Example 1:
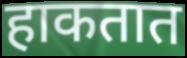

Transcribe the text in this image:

हाकतात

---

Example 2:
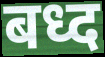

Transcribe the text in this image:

बध्द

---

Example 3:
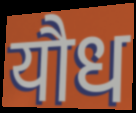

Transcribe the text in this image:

यौध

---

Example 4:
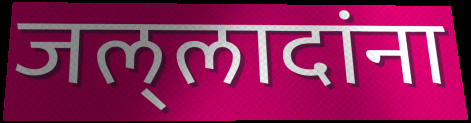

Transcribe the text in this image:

जल्लादांना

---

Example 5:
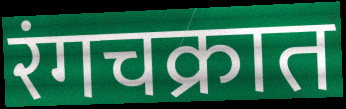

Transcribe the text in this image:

रंगचक्रात